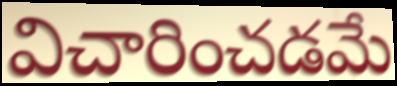
విచారించడమే